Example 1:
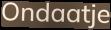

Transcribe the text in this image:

Ondaatje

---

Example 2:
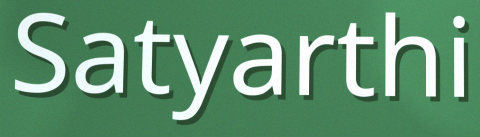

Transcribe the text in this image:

Satyarthi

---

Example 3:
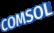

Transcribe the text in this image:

COMSOL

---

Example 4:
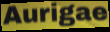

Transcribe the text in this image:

Aurigae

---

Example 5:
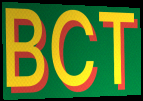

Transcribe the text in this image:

BCT